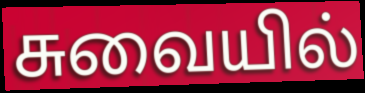
சுவையில்